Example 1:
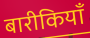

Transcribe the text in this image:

बारीकियाँ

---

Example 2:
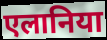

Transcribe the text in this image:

एलानिया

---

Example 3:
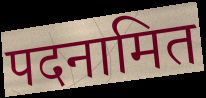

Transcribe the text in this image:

पदनामित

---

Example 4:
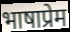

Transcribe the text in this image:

भाषाप्रेम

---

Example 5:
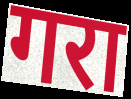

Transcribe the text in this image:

गरा